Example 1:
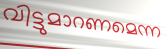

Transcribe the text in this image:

വിട്ടുമാറണമെന്ന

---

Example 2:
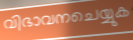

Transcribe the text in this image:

വിഭാവനചെയ്യുക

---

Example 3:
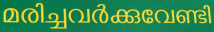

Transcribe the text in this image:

മരിച്ചവർക്കുവേണ്ടി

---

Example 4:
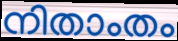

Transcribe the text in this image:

നിതാംതം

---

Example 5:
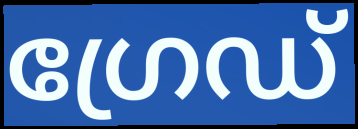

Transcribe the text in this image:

ഗ്രേഡ്